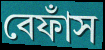
বেফাঁস